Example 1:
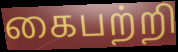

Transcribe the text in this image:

கைபற்றி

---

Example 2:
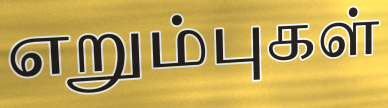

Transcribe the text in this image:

எறும்புகள்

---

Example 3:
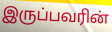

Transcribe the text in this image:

இருப்பவரின்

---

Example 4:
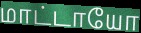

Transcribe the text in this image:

மாட்டாயோ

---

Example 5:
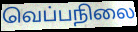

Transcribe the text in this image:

வெப்பநிலை